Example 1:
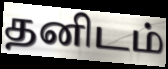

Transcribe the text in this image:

தனிடம்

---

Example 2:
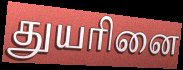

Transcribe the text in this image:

துயரினை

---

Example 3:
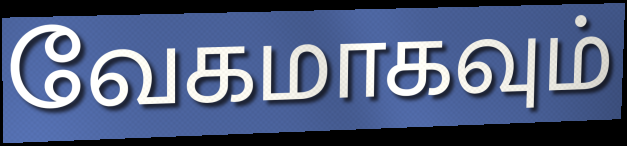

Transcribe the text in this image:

வேகமாகவும்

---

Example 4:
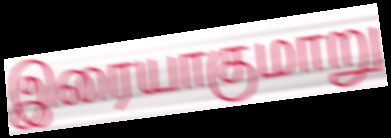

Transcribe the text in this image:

இரையாகுமாறு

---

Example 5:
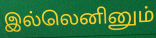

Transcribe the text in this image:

இல்லெனினும்